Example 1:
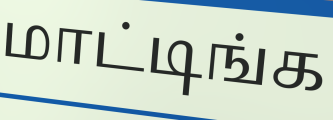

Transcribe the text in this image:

மாட்டிங்க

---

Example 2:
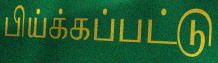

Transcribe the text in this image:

பிய்க்கப்பட்டு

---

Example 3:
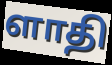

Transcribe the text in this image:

ளாதி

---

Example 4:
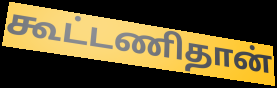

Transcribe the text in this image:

கூட்டணிதான்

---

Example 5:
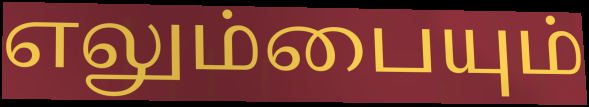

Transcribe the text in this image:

எலும்பையும்